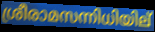
ശ്രീരാമസന്നിധിയില്